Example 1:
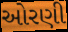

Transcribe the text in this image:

ઓરણી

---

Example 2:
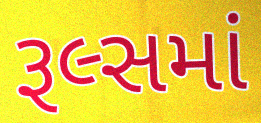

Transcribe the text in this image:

રૂલ્સમાં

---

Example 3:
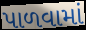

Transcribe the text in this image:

પાળવામાં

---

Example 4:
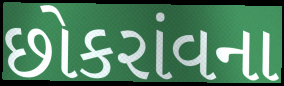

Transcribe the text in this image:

છોકરાંવના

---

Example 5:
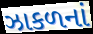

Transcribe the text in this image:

ઝાકળનાં